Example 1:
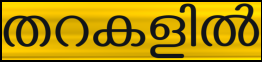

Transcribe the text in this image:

തറകളിൽ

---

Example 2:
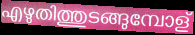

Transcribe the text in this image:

എഴുതിത്തുടങ്ങുമ്പോള്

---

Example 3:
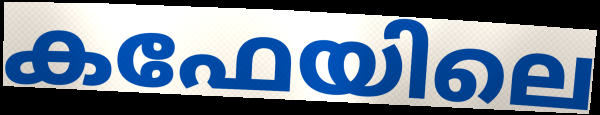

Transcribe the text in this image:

കഫേയിലെ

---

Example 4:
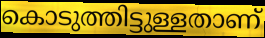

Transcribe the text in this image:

കൊടുത്തിട്ടുള്ളതാണ്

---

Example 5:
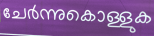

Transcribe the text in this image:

ചേർന്നുകൊള്ളുക